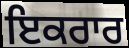
ਇਕਰਾਰ